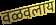
वळवलाय